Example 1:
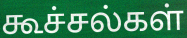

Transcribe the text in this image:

கூச்சல்கள்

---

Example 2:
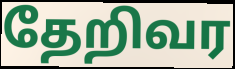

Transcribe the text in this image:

தேறிவர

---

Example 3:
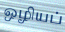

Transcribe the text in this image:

ஒழியப்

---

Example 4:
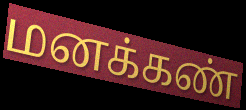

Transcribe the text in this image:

மனக்கண்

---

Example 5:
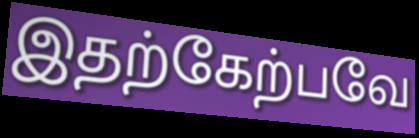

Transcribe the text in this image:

இதற்கேற்பவே